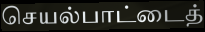
செயல்பாட்டைத்